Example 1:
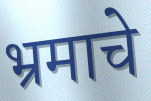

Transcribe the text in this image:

भ्रमाचे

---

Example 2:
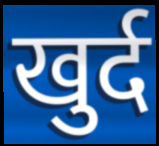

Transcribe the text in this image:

खुर्द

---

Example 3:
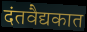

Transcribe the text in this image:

दंतवैद्यकात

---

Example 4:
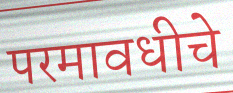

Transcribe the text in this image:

परमावधीचे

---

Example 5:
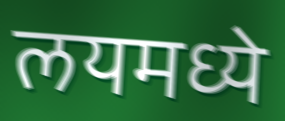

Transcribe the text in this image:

लयमध्ये